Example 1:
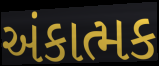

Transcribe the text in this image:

અંકાત્મક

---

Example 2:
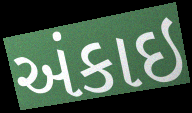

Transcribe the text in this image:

અંકાઇ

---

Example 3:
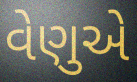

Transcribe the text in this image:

વેણુએ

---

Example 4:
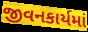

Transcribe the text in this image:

જીવનકાર્યમાં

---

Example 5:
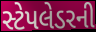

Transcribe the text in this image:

સ્ટેપલેડરની